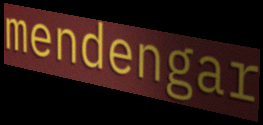
mendengar